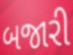
બજારી